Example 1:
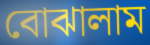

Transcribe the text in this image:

বোঝালাম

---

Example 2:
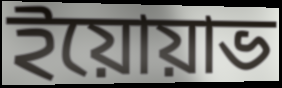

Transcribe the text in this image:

ইয়োয়াভ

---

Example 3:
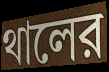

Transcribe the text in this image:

থালের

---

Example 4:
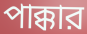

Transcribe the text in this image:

পাক্কার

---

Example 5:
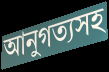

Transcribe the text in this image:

আনুগত্যসহ